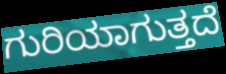
ಗುರಿಯಾಗುತ್ತದೆ